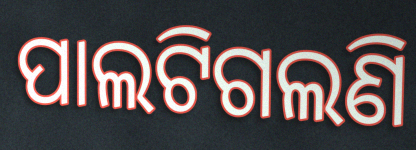
ପାଲଟିଗଲଣି